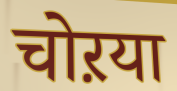
चोऱया